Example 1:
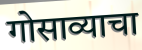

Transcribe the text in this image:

गोसाव्याचा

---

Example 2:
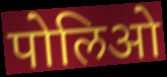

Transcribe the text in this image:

पोलिओ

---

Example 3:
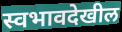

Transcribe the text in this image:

स्वभावदेखील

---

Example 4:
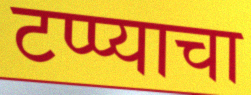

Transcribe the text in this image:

टप्प्याचा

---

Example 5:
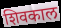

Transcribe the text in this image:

शिवकाल